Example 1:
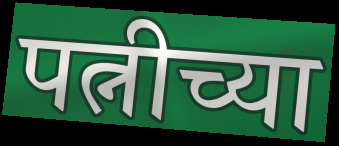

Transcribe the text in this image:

पत्नीच्या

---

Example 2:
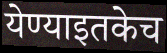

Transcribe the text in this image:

येण्याइतकेच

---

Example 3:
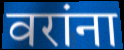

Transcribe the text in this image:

वरांना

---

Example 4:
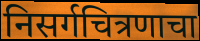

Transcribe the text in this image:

निसर्गचित्रणाचा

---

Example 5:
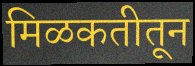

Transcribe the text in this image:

मिळकतीतून